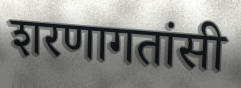
शरणागतांसी